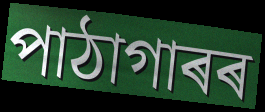
পাঠাগাৰৰ